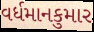
વર્ધમાનકુમાર